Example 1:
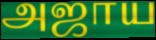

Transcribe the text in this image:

அஜாய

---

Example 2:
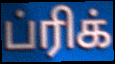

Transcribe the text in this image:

ப்ரிக்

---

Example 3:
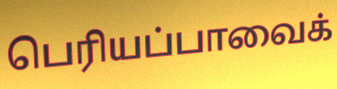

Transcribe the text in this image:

பெரியப்பாவைக்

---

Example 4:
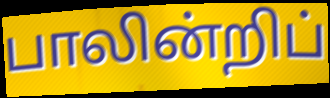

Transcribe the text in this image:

பாலின்றிப்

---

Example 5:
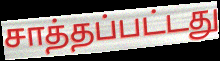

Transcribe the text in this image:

சாத்தப்பட்டது